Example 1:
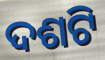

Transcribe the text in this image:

ଦଶଟି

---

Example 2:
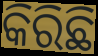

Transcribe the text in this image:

କିରିଛି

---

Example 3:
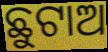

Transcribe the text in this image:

ଛୁଟାଅ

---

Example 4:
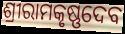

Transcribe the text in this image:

ଶ୍ରୀରାମକୃଷ୍ଣଦେବ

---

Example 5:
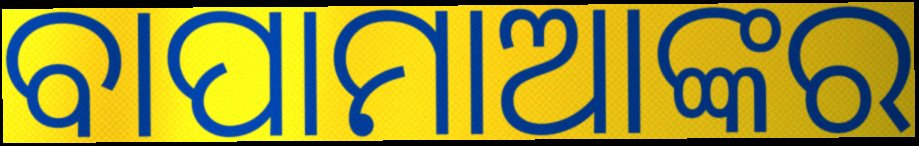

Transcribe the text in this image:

ବାପାମାଆଙ୍କର